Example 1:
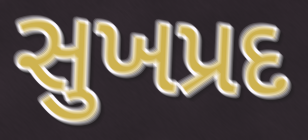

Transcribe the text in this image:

સુખપ્રદ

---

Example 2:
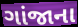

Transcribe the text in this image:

ગાંજાના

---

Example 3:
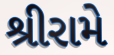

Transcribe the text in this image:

શ્રીરામે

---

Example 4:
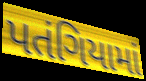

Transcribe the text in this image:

પતંગિયામાં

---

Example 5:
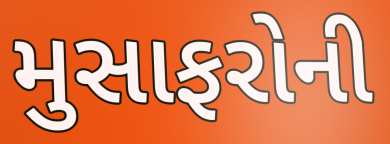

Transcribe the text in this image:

મુસાફરોની